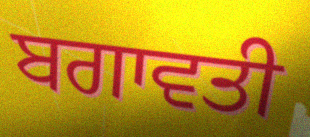
ਬਗਾਵਤੀ